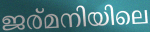
ജര്മനിയിലെ